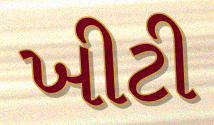
ખીટી